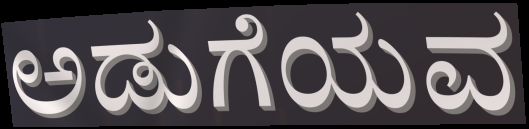
ಅಡುಗೆಯವ